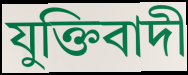
যুক্তিবাদী